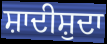
ਸ਼ਾਦੀਸ਼ੁਦਾ